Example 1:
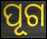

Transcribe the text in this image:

ପୂଗ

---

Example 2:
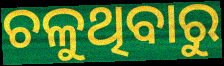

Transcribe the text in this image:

ଚଳୁଥିବାରୁ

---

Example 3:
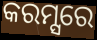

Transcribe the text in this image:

କରମ୍ସରେ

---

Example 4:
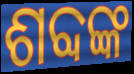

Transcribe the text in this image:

ଶବ୍ଦଙ୍କ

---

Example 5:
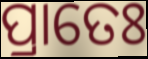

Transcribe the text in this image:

ପ୍ରାତେଃ